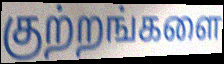
குற்றங்களை